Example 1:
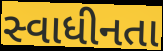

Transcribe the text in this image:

સ્વાધીનતા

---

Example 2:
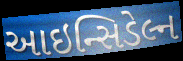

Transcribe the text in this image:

આઇન્સિડેલ્ન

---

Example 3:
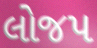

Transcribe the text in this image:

લોજપ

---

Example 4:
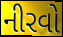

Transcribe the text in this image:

નીરવો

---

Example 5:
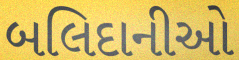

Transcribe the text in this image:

બલિદાનીઓ